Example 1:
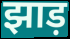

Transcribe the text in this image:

झाड़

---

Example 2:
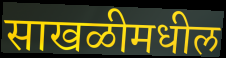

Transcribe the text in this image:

साखळीमधील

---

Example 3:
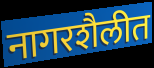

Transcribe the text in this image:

नागरशैलीत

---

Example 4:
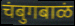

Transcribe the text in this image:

चंबुगबाळं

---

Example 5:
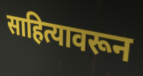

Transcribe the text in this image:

साहित्यावरून